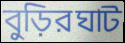
বুড়িরঘাট